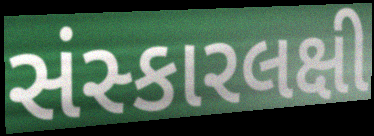
સંસ્કારલક્ષી